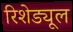
रिशेड्यूल